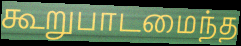
கூறுபாடமைந்த